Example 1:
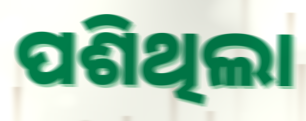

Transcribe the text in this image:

ପଶିଥିଲା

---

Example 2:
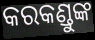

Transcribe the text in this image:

କରକଣ୍ଡୁଙ୍କ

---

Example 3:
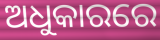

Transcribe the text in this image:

ଅଧୁକାରରେ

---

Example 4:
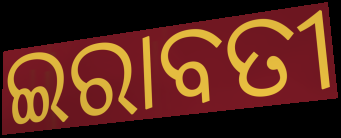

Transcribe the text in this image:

ଇରାବତୀ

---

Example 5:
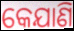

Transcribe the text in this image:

କେଯାଣି